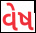
વેષ